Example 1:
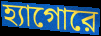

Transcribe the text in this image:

হ্যাগোরে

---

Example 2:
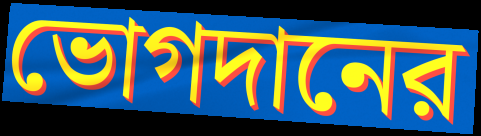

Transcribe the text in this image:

ভোগদানের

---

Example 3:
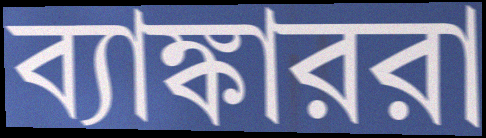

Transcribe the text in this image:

ব্যাঙ্কাররা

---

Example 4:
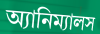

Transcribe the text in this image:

অ্যানিম্যালস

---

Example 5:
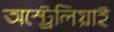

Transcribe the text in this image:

অস্ট্রেলিয়াই